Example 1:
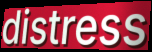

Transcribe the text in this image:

distress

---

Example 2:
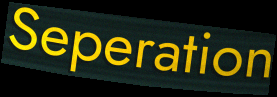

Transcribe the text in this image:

Seperation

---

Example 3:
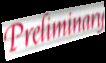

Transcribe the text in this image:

Preliminary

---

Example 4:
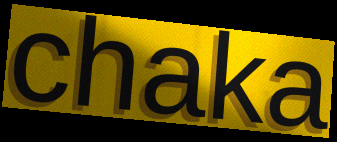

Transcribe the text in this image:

chaka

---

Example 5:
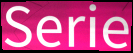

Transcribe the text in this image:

Serie